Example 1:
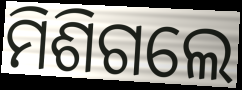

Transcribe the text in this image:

ମିଶିଗଲେ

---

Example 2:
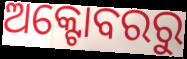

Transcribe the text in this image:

ଅକ୍ଟୋବରରୁ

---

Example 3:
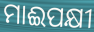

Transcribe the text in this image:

ମାଈପକ୍ଷୀ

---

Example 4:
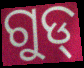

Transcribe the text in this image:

ଗୁଡ୍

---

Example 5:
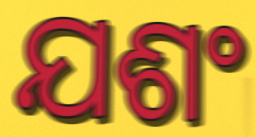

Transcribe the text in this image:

ଯଶଂ